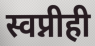
स्वप्नीही